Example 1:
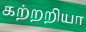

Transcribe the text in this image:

கற்றறியா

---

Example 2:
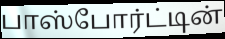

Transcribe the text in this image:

பாஸ்போர்ட்டின்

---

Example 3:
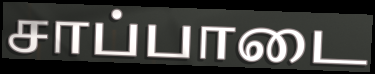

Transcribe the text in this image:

சாப்பாடை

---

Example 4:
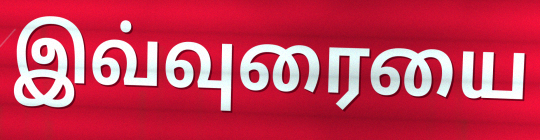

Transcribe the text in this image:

இவ்வுரையை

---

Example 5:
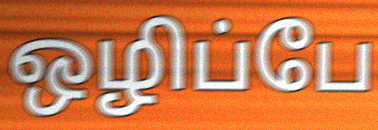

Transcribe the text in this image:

ஒழிப்பே